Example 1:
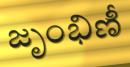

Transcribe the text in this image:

జృంభిణీ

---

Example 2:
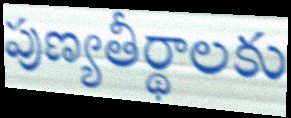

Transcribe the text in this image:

పుణ్యతీర్థాలకు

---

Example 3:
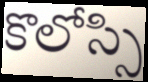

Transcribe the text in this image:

కొలోస్సి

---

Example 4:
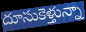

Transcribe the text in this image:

దూసుకెళ్తున్నా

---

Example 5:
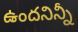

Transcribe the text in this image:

ఉందనిన్నీ